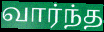
வார்ந்த